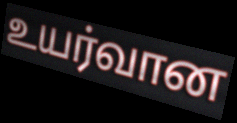
உயர்வான